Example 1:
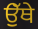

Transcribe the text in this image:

ਉੁੱਥੇ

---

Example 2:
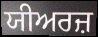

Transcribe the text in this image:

ਯੀਅਰਜ਼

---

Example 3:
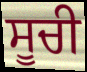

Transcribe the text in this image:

ਸੂਚੀ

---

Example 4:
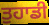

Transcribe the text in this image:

ਤੁਹਾਡੀ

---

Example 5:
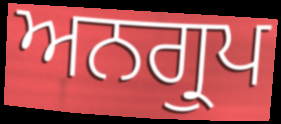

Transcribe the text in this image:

ਅਨਗ੍ਰੁਪ